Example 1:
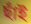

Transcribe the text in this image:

ছাঁই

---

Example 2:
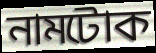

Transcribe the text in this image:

নামটোক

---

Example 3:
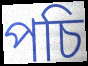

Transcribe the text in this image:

পচি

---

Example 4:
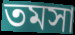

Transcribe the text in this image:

তমসা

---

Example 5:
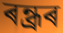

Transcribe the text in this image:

ৰন্ধ্ৰৰ